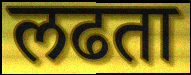
लढता